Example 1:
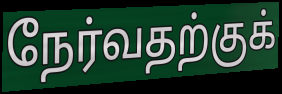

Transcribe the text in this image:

நேர்வதற்குக்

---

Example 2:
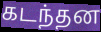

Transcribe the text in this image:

கடந்தன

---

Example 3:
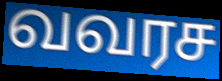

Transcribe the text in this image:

வவரச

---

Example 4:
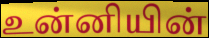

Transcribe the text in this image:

உன்னியின்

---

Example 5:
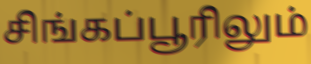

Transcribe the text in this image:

சிங்கப்பூரிலும்